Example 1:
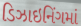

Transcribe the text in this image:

ડિઝાઇનિંગમાં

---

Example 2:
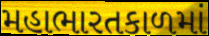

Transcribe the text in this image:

મહાભારતકાળમાં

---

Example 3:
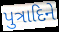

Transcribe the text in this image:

પુત્રાદિને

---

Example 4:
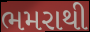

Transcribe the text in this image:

ભમરાથી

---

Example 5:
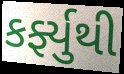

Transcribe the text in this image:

કર્ફ્યુથી